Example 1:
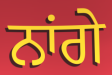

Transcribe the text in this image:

ਨਾਂਗੇ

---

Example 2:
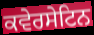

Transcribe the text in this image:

ਕਵੇਰਸੇਟਿਨ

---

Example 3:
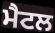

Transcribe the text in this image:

ਮੈਟਲ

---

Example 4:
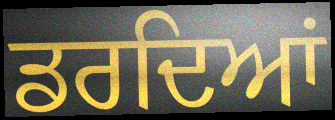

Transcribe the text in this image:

ਡਰਦਿਆਂ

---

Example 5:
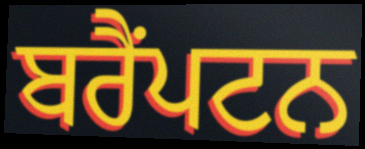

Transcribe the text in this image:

ਬਰੈੰਪਟਨ